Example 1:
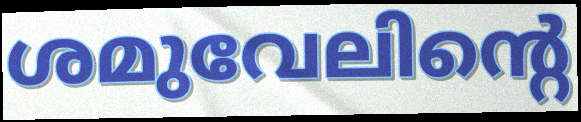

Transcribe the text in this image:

ശമുവേലിന്റെ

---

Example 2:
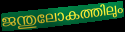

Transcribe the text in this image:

ജന്തുലോകത്തിലും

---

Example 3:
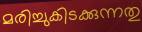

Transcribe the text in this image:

മരിച്ചുകിടക്കുന്നതു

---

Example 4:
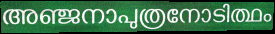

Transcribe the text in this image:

അഞ്ജനാപുത്രനോടിത്ഥം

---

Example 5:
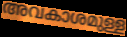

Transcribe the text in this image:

അവകാശമുള്ള